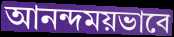
আনন্দময়ভাবে